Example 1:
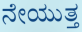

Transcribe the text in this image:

ನೇಯುತ್ತ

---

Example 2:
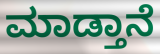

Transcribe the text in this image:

ಮಾಡ್ತಾನೆ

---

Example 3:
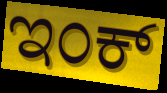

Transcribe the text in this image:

ಇಂಕ್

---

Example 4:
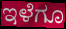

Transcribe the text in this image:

ಇಳೆಗೂ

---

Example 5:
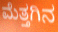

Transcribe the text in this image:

ಮೆತ್ತಗಿನ